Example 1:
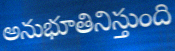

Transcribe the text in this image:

అనుభూతినిస్తుంది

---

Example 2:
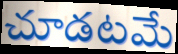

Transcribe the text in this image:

చూడటమే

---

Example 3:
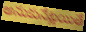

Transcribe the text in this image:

అనుకునేట్లయితే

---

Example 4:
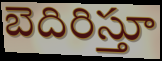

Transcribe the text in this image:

బెదిరిస్తూ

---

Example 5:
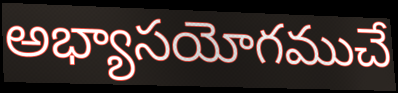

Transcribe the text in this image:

అభ్యాసయోగముచే